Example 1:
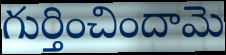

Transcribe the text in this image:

గుర్తించిందామె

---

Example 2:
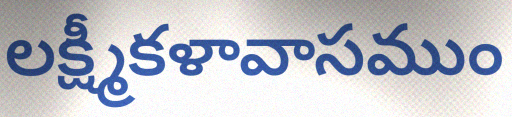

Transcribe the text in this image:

లక్ష్మీకళావాసముం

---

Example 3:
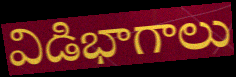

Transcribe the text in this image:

విడిభాగాలు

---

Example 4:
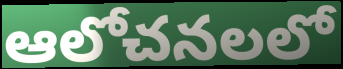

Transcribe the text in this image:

ఆలోచనలలో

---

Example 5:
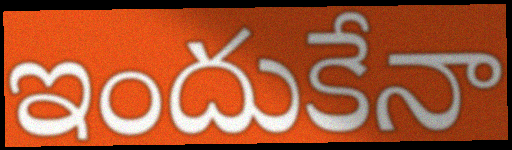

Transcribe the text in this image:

ఇందుకేనా